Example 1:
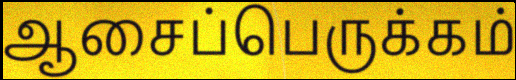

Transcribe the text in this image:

ஆசைப்பெருக்கம்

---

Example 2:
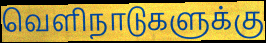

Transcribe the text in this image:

வெளிநாடுகளுக்கு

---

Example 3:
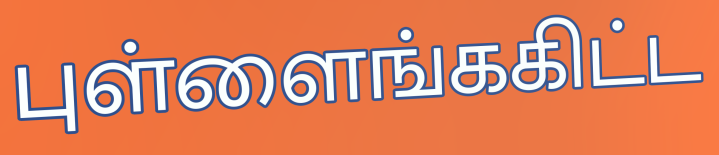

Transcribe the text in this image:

புள்ளைங்ககிட்ட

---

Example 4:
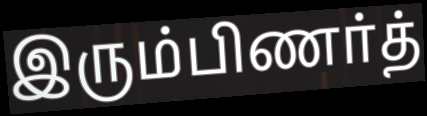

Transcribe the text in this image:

இரும்பிணர்த்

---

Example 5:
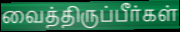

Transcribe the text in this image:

வைத்திருப்பீர்கள்